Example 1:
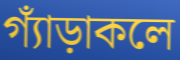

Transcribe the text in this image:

গ্যাঁড়াকলে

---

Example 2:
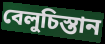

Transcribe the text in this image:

বেলুচিস্তান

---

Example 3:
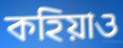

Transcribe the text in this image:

কহিয়াও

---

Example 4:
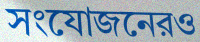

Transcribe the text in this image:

সংযোজনেরও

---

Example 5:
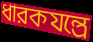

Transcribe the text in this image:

ধারকযন্ত্রে